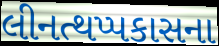
લીનત્થપ્પકાસના